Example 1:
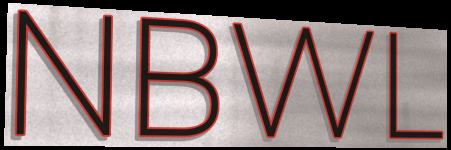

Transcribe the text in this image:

NBWL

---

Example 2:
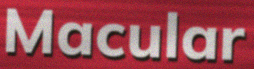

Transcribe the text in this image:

Macular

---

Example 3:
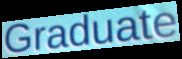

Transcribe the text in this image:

Graduate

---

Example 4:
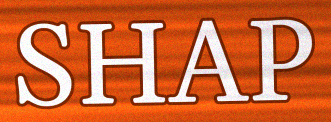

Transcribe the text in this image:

SHAP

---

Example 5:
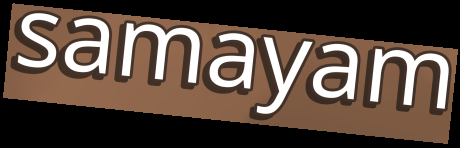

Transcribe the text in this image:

samayam